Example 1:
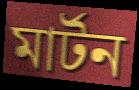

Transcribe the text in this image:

মার্টন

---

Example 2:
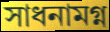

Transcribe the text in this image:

সাধনামগ্ন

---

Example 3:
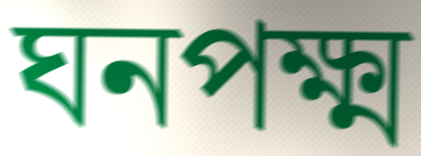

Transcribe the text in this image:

ঘনপক্ষ্ম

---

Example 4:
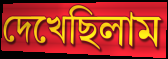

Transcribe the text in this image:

দেখেছিলাম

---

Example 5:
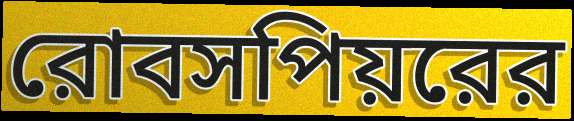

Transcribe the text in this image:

রোবসপিয়রের